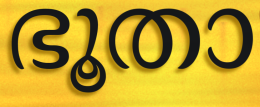
ഭൂതാ